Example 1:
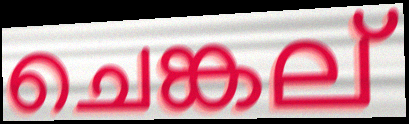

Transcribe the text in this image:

ചെങ്കല്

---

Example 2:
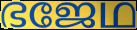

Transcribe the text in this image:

ഭജേഥ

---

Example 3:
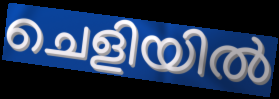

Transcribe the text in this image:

ചെളിയിൽ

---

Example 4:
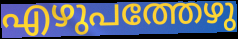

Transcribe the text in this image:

എഴുപത്തേഴു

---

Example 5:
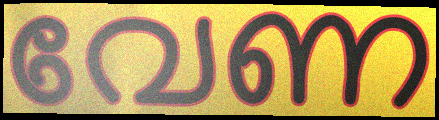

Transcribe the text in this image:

വേണ